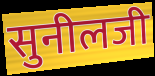
सुनीलजी